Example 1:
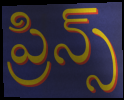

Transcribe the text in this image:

ప్రిన్స్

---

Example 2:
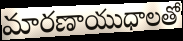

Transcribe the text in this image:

మారణాయుధాలతో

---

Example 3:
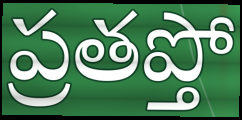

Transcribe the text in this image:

ప్రతప్తో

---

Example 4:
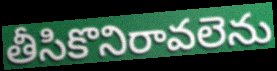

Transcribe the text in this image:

తీసికొనిరావలెను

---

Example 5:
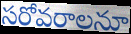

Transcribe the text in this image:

సరోవరాలనూ